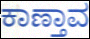
ಕಾಣ್ತಾವ